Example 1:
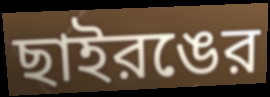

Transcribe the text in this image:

ছাইরঙের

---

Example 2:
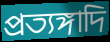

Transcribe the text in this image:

প্রত্যঙ্গাদি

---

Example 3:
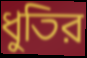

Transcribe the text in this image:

ধুতির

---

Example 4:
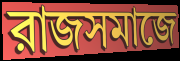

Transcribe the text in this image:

রাজসমাজে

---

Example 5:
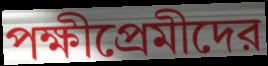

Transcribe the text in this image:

পক্ষীপ্রেমীদের